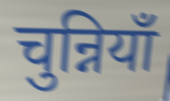
चुन्नियाँ